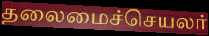
தலைமைச்செயலர்